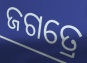
ଜଗତ୍ରେ